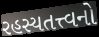
રહસ્યતત્ત્વનો